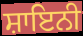
ਸ਼ਾਇਨੀ